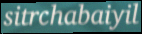
sitrchabaiyil